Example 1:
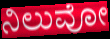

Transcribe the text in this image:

ನಿಲುವೋ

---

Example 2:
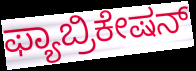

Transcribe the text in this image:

ಫ್ಯಾಬ್ರಿಕೇಷನ್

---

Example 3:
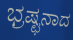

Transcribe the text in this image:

ಭ್ರಷ್ಟನಾದ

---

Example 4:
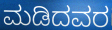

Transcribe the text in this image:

ಮಡಿದವರ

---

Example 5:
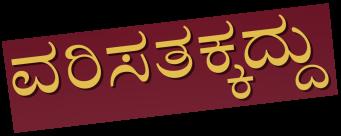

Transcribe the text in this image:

ವರಿಸತಕ್ಕದ್ದು